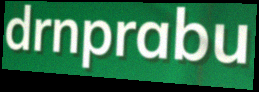
drnprabu